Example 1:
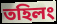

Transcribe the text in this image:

তহিলং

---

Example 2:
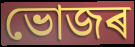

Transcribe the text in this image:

ভোজৰ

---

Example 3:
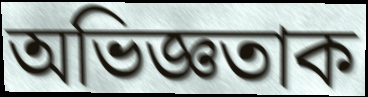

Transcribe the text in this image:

অভিজ্ঞতাক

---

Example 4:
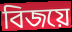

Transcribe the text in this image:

বিজয়ে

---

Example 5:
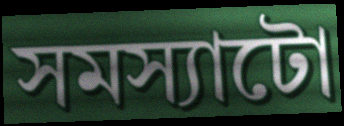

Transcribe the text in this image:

সমস্যাটো